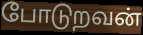
போடுறவன்